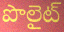
పొలైట్